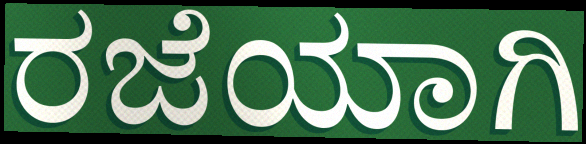
ರಜೆಯಾಗಿ